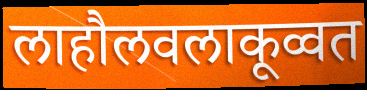
लाहौलवलाकूव्वत